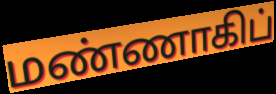
மண்ணாகிப்